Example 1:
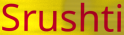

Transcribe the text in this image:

Srushti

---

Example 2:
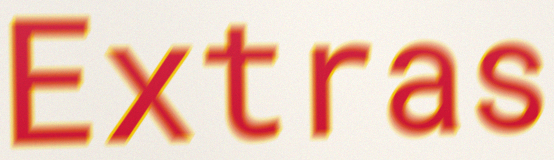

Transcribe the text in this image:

Extras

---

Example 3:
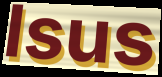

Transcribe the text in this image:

Isus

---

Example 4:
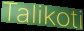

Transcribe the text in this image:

Talikoti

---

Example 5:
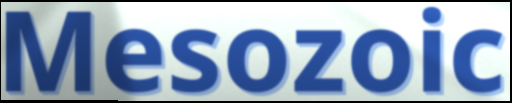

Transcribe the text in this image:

Mesozoic